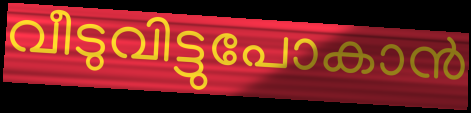
വീടുവിട്ടുപോകാൻ